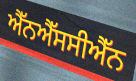
ਐੱਨਐੱਸਸੀਐੱਨ